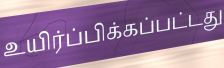
உயிர்ப்பிக்கப்பட்டது